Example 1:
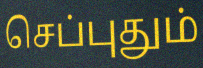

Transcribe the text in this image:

செப்புதும்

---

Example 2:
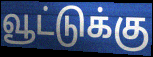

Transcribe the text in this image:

வூட்டுக்கு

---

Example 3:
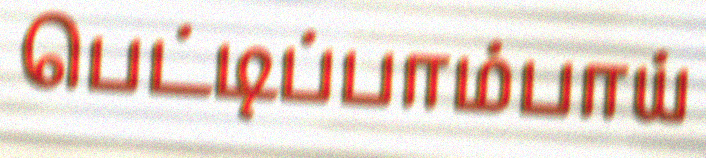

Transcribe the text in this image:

பெட்டிப்பாம்பாய்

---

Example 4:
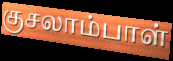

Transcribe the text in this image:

குசலாம்பாள்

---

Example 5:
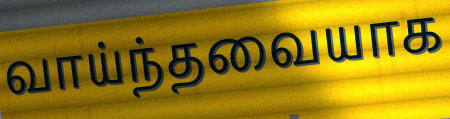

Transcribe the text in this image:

வாய்ந்தவையாக